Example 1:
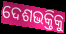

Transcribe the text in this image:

ଦେଶଭକ୍ତିକୁ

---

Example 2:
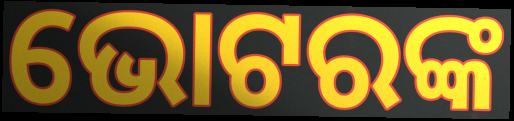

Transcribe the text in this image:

ଭୋଟରଙ୍କ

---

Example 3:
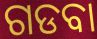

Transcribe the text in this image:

ଗଡବା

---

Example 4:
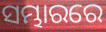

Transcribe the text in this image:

ସମ୍ଭାରରେ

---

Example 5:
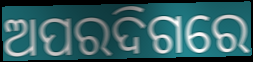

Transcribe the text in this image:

ଅପରଦିଗରେ